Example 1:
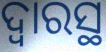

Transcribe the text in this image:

ଦ୍ବାରସ୍ଥ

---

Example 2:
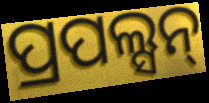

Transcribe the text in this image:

ପ୍ରପଲ୍ସନ୍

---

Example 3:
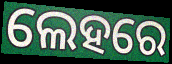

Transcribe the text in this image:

ଲେହରେ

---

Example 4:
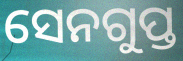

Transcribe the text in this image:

ସେନଗୁପ୍ତ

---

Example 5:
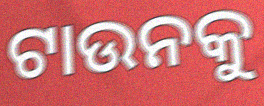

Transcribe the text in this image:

ଟାଉନକୁ